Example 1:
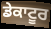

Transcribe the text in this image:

ਡੇਕਾਟੂਰ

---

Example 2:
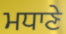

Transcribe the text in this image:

ਮਧਾਣੇ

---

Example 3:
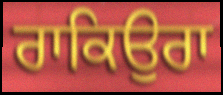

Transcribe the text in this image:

ਰਾਕਿਉਰਾ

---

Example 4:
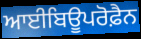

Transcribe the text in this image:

ਆਈਬਿਊਪਰੋਫ਼ੈਨ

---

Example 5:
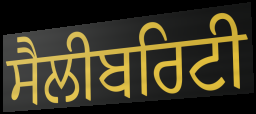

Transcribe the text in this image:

ਸੈਲੀਬਰਿਟੀ